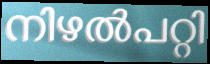
നിഴൽപറ്റി